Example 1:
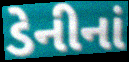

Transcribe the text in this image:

ડેનીનાં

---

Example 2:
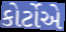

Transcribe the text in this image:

કોર્ટોએ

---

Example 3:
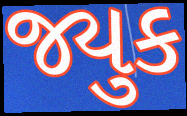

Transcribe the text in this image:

જ્યુક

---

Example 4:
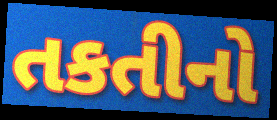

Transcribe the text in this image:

તકતીનો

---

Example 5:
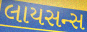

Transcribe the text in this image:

લાયસન્સ